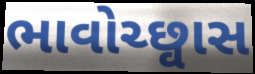
ભાવોચ્છ્વાસ